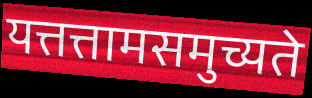
यत्तत्तामसमुच्यते